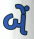
બેં